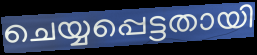
ചെയ്യപ്പെട്ടതായി